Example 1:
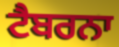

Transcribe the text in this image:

ਟੈਬਰਨਾ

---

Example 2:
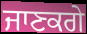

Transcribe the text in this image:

ਜਾਣਕਗੇ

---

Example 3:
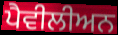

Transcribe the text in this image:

ਪੈਵੀਲੀਅਨ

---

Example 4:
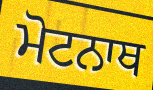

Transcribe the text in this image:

ਮੋਟਨਾਥ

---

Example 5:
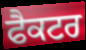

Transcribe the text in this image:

ਫੈਕਟਰ